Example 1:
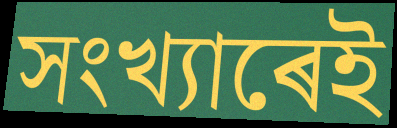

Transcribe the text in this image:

সংখ্যাৰেই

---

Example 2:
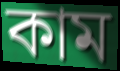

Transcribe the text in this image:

কাম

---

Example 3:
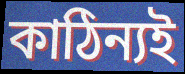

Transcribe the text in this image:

কাঠিন্যই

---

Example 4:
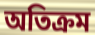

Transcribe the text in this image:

অতিক্ৰম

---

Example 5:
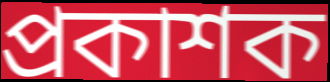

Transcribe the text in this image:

প্ৰকাশক